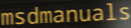
msdmanuals